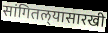
सांगितल्यासारखी